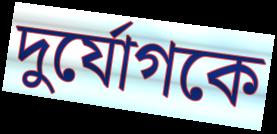
দুর্যোগকে